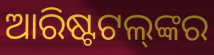
ଆରିଷ୍ଟଟଲ୍‌ଙ୍କର